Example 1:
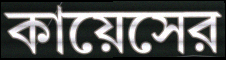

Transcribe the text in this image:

কায়েসের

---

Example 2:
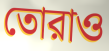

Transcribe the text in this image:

তোরাও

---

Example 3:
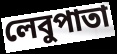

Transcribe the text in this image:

লেবুপাতা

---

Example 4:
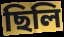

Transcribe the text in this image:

ছিলি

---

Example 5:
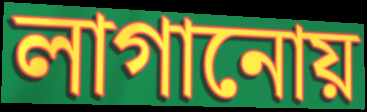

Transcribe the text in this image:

লাগানোয়